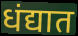
धंद्यात